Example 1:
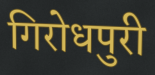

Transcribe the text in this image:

गिरोधपुरी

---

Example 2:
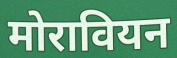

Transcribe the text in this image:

मोरावियन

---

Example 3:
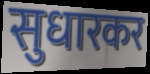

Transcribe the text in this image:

सुधारकर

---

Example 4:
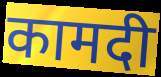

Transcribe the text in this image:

कामदी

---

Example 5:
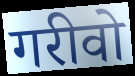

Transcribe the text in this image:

गरीवो